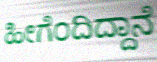
ಹೀಗೆಂದಿದ್ದಾನೆ